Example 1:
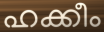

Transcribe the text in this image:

ഹക്കീം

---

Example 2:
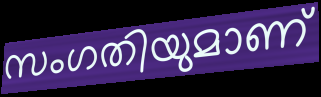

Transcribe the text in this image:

സംഗതിയുമാണ്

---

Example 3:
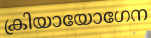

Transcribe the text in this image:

ക്രിയായോഗേന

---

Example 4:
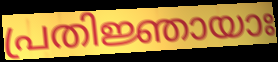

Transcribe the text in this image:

പ്രതിജ്ഞായാഃ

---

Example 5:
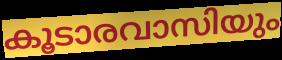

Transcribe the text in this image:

കൂടാരവാസിയും